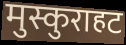
मुस्कुराहट